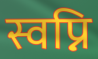
स्वप्नि